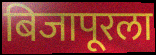
बिजापूरला